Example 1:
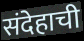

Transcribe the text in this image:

संदेहाची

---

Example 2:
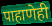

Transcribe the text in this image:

पाहाणेही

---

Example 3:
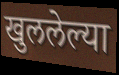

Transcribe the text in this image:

खुललेल्या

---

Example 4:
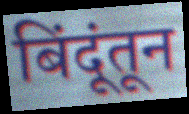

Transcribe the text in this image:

बिंदूंतून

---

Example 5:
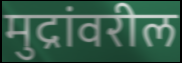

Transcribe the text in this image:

मुद्रांवरील